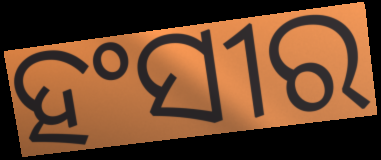
ହଂସୀର